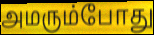
அமரும்போது